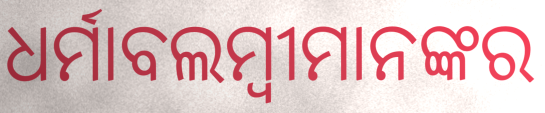
ଧର୍ମାବଲମ୍ବୀମାନଙ୍କର